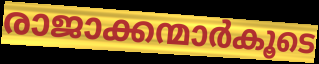
രാജാക്കന്മാർകൂടെ